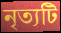
নৃত্যটি